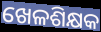
ଖେଳଶିକ୍ଷକ